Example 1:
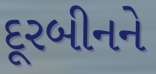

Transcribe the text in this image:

દૂરબીનને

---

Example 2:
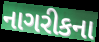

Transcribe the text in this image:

નાગરીકના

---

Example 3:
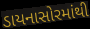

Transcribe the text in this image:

ડાયનાસોરમાંથી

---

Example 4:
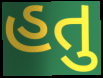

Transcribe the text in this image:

હતુ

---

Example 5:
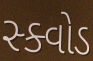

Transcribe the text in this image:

સ્ક્વોડ